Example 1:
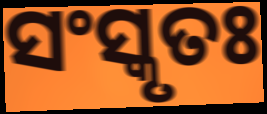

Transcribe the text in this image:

ସଂସ୍କୃତଃ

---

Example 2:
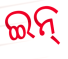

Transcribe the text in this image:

ଇନ୍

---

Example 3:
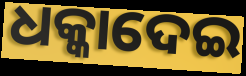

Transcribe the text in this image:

ଧକ୍କାଦେଇ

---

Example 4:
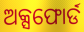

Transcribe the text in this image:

ଅକ୍ସଫୋର୍ଡ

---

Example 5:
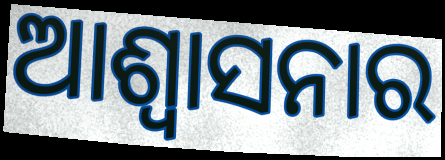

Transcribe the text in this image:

ଆଶ୍ୱାସନାର